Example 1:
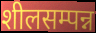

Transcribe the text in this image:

शीलसम्पन्न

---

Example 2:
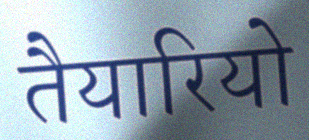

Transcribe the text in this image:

तैयारियो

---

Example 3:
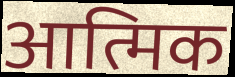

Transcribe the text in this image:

आत्मिक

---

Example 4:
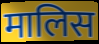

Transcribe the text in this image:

मालिस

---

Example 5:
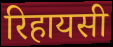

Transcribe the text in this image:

रिहायसी